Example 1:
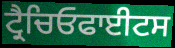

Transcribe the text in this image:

ਟ੍ਰੈਚਿਓਫਾਈਟਸ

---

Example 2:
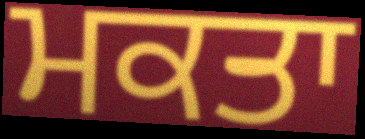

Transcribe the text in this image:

ਮਕਤਾ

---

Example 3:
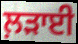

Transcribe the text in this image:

ਲ਼ੜਾਈ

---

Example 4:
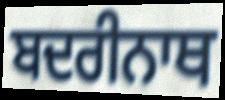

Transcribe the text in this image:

ਬਦਰੀਨਾਥ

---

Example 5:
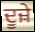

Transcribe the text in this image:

ਦੂਜ਼ੇ